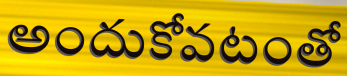
అందుకోవటంతో